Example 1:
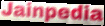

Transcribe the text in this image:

Jainpedia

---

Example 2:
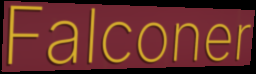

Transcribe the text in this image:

Falconer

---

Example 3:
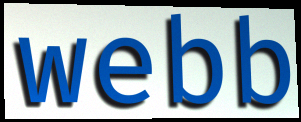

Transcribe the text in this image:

webb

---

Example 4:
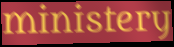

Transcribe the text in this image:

ministery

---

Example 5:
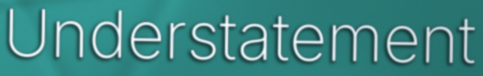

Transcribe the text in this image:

Understatement